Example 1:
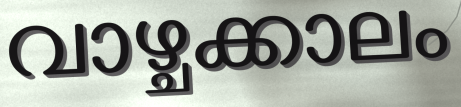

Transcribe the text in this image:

വാഴ്ചക്കാലം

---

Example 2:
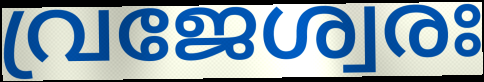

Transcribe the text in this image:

വ്രജേശ്വരഃ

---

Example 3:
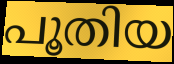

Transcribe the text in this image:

പൂതിയ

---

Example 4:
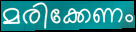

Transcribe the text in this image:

മരിക്കേണം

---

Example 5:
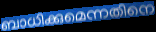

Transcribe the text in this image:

ബാധിക്കുമെന്നതിനെ